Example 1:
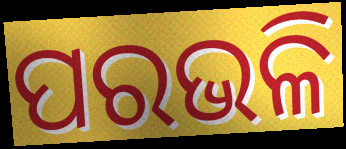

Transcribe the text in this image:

ପରଭଳି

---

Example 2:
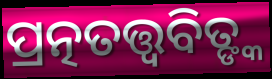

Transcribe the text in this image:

ପ୍ରତ୍ନତତ୍ତ୍ୱବିତ୍ଙ୍କ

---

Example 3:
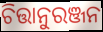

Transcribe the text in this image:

ଚିତ୍ତାନୁରଞ୍ଜନ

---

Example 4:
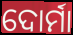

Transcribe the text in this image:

ଦୋର୍ମା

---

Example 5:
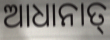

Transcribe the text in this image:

ଆଧାନାତ୍